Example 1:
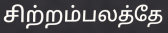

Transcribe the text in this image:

சிற்றம்பலத்தே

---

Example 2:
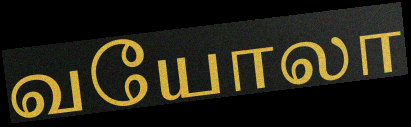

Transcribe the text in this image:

வயோலா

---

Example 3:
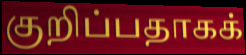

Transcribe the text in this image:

குறிப்பதாகக்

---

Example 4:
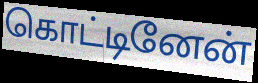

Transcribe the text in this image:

கொட்டினேன்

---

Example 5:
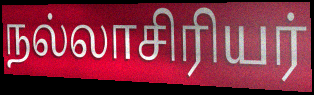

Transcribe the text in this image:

நல்லாசிரியர்